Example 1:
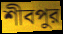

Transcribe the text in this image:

শীবপুর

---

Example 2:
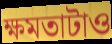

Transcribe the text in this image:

ক্ষমতাটাও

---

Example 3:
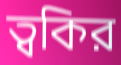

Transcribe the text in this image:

ত্বকির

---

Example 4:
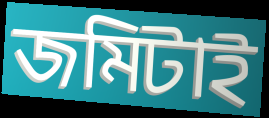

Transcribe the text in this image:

জমিটাই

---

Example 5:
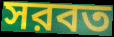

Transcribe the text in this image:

সরবত